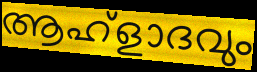
ആഹ്ളാദവും